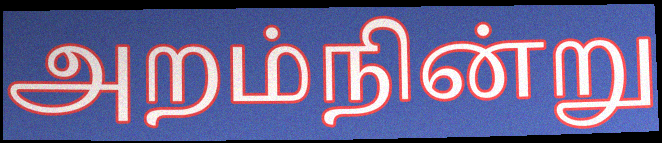
அறம்நின்று